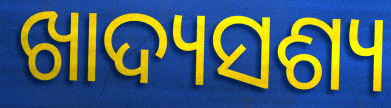
ଖାଦ୍ୟସଶ୍ୟ